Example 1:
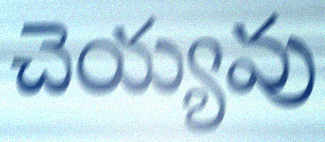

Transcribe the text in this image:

చెయ్యవు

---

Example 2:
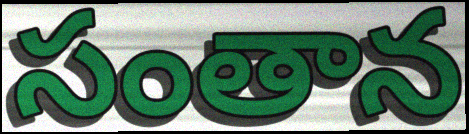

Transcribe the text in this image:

సంతాన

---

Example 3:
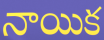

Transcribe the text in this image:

నాయిక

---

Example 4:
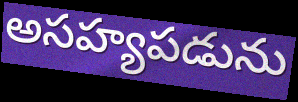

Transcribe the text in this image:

అసహ్యపడును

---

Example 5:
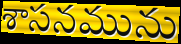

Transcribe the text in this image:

శాసనమును